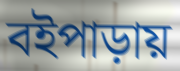
বইপাড়ায়